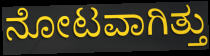
ನೋಟವಾಗಿತ್ತು